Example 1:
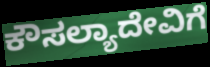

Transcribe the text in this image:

ಕೌಸಲ್ಯಾದೇವಿಗೆ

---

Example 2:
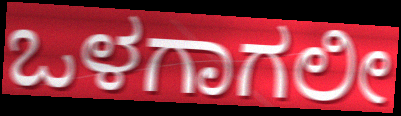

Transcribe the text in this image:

ಒಳಗಾಗಲೀ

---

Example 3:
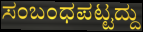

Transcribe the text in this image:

ಸಂಬಂಧಪಟ್ಟದ್ದು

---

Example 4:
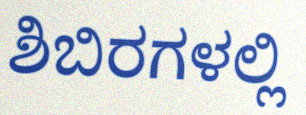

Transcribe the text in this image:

ಶಿಬಿರಗಳಲ್ಲಿ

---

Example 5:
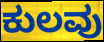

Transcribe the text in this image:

ಕುಲವು